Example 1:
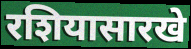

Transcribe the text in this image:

रशियासारखे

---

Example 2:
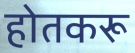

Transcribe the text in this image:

होतकरू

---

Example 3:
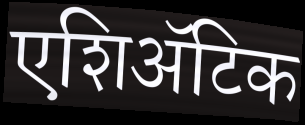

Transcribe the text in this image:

एशिॲटिक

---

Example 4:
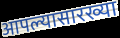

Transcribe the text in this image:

आपल्यासारख्या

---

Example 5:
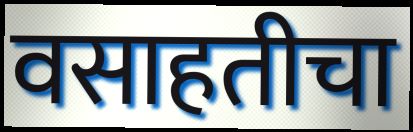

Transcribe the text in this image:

वसाहतीचा